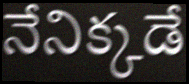
నేనిక్కడే